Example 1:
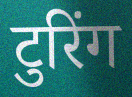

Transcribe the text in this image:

टुरिंग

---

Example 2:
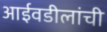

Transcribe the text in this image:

आईवडीलांची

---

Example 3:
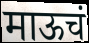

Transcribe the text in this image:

माऊचं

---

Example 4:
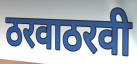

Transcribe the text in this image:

ठरवाठरवी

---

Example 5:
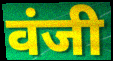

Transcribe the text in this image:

वंजी